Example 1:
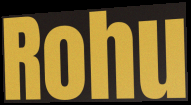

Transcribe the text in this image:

Rohu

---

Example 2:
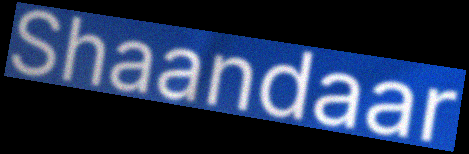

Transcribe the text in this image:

Shaandaar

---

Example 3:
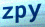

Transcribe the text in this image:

zpy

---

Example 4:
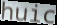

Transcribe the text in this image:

huic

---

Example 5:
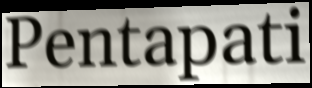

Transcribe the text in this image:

Pentapati